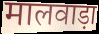
मालवाड़ा